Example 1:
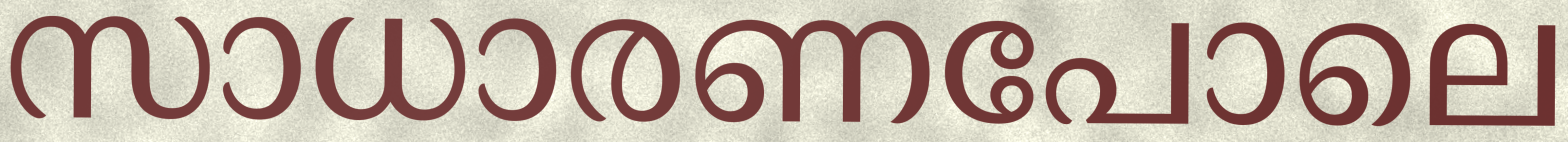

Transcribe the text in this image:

സാധാരണപോലെ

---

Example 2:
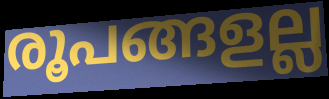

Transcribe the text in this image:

രൂപങ്ങളല്ല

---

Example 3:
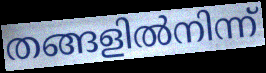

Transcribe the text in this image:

തങ്ങളിൽനിന്ന്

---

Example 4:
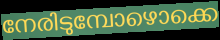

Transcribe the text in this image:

നേരിടുമ്പോഴൊക്കെ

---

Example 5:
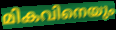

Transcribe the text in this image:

മികവിനെയും